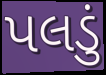
પલડું